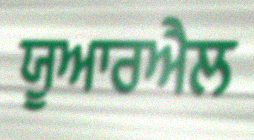
ਯੂਆਰਐਲ